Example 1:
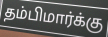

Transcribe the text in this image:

தம்பிமார்க்கு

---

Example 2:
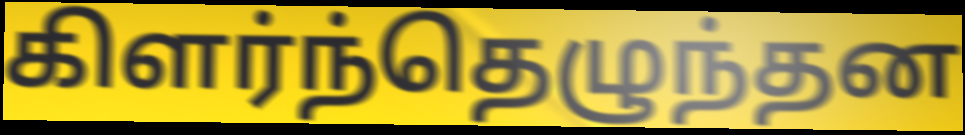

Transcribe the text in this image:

கிளர்ந்தெழுந்தன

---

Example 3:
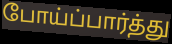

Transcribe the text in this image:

போய்ப்பார்த்து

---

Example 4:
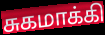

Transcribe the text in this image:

சுகமாக்கி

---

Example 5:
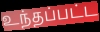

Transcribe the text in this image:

உந்தப்பட்ட